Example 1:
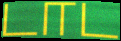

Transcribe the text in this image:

டாட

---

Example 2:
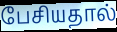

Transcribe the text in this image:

பேசியதால்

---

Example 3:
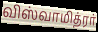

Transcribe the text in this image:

விஸ்வாமித்ரர்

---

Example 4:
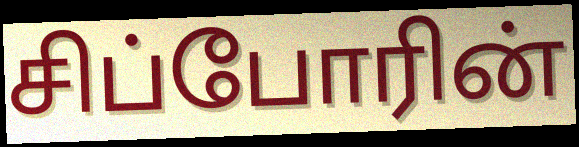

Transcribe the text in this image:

சிப்போரின்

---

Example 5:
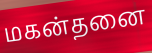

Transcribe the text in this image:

மகன்தனை